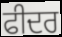
ਫੀਦਰ